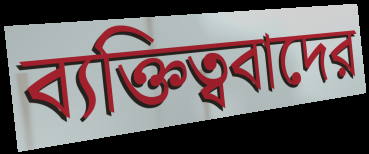
ব্যক্তিত্ববাদের